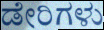
ಡೇರಿಗಳು